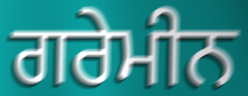
ਗਰੇਮੀਨ